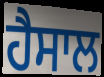
ਹੈਸਾਲ